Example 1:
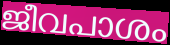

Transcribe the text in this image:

ജീവപാശം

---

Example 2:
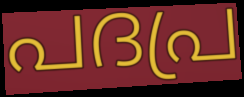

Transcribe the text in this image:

പദപ്ര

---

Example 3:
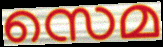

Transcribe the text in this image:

സെമ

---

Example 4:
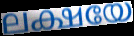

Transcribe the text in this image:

ലക്ഷയേ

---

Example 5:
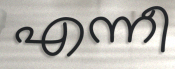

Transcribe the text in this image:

എന്നീ